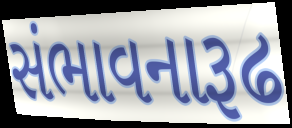
સંભાવનારૂઢ